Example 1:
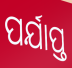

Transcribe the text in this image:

ପର୍ଯାପ୍ତ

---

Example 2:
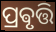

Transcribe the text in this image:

ପ୍ରଵୃତ୍ତି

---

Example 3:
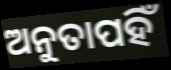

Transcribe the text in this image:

ଅନୁତାପହିଁ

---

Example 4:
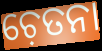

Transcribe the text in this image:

ଚ଼େତନା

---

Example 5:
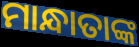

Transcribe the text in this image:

ମାନ୍ଧାତାଙ୍କ